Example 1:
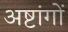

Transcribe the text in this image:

अष्टांगों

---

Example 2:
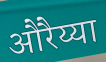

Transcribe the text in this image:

औरैय्या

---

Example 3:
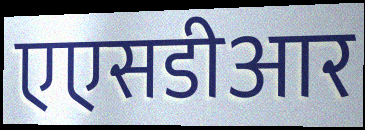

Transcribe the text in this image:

एएसडीआर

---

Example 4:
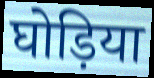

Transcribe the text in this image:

घोड़िया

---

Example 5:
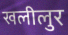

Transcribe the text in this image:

खलीलुर